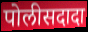
पोलीसदादा